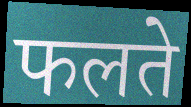
फलते